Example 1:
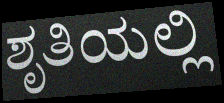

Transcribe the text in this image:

ಶೃತಿಯಲ್ಲಿ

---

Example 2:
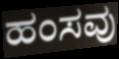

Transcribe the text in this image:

ಹಂಸವು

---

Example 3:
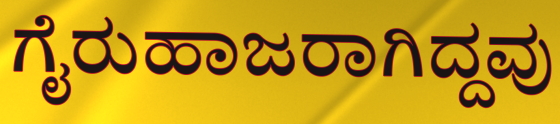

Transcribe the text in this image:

ಗೈರುಹಾಜರಾಗಿದ್ದವು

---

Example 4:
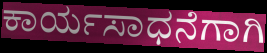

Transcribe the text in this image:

ಕಾರ್ಯಸಾಧನೆಗಾಗಿ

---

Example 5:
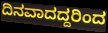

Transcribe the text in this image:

ದಿನವಾದದ್ದರಿಂದ